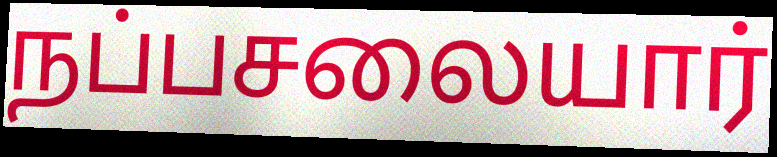
நப்பசலையார்